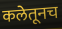
कलेतूनच